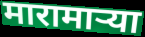
मारामार्‍या